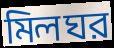
মিলঘর